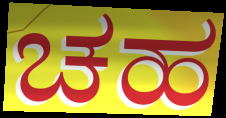
ಚಹ